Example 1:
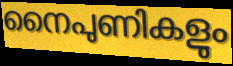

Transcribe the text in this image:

നൈപുണികളും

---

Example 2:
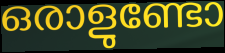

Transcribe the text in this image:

ഒരാളുണ്ടോ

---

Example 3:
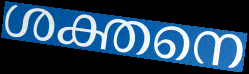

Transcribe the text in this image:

ശക്തനെ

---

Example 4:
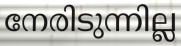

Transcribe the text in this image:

നേരിടുന്നില്ല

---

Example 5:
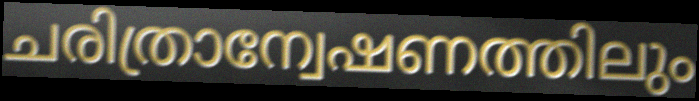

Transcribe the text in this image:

ചരിത്രാന്വേഷണത്തിലും